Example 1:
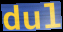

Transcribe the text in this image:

dul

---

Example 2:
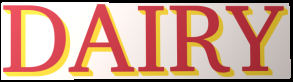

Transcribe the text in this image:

DAIRY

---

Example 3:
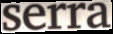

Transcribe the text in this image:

serra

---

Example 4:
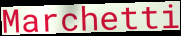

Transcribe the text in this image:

Marchetti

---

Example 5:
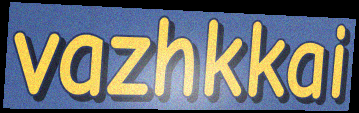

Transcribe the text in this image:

vazhkkai